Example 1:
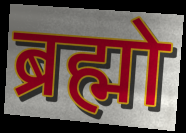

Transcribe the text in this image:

ब्रह्मो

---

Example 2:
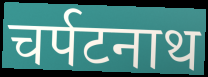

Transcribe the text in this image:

चर्पटनाथ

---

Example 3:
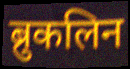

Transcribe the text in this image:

ब्रुकलिन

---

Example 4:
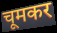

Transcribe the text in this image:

चूमकर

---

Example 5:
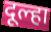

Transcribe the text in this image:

दूल्हा